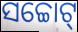
ସଚ୍ଚୋଟ୍